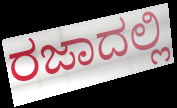
ರಜಾದಲ್ಲಿ